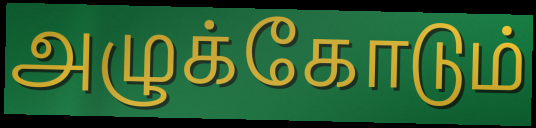
அழுக்கோடும்